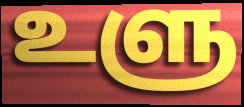
உளு